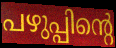
പഴുപ്പിന്റെ